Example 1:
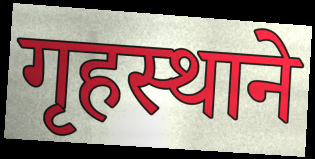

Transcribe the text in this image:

गृहस्थाने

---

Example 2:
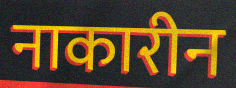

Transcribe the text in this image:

नाकारीन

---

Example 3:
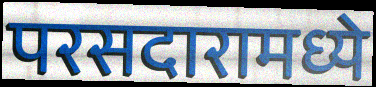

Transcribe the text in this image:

परसदारामध्ये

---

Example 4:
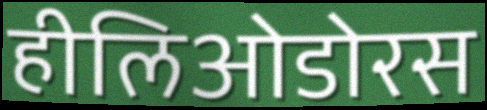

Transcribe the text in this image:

हीलिओडोरस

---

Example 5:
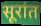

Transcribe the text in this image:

सूरांत